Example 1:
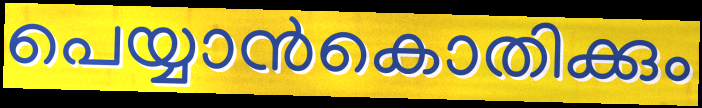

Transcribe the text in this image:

പെയ്യാൻകൊതിക്കും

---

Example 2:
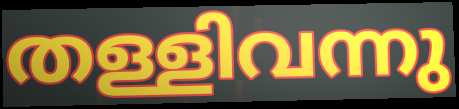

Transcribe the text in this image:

തള്ളിവന്നു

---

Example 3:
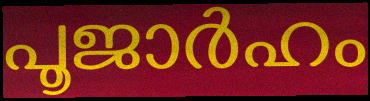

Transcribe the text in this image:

പൂജാർഹം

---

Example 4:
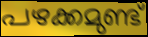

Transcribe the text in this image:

പഴക്കമുണ്ട്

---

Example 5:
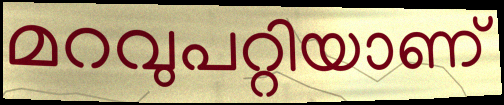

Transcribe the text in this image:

മറവുപറ്റിയാണ്